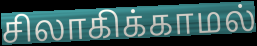
சிலாகிக்காமல்